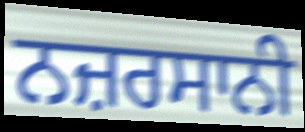
ਨਜ਼ਰਸਾਨੀ